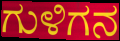
ಗುಳಿಗನ